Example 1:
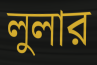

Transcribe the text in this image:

লুলার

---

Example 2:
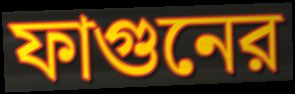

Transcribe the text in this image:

ফাগুনের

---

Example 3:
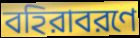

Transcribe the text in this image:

বহিরাবরণে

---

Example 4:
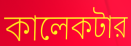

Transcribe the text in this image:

কালেকটার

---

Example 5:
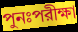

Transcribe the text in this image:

পুনঃপরীক্ষা